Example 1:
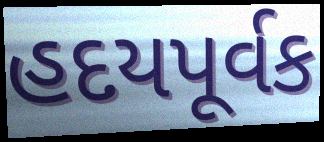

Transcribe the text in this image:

હદયપૂર્વક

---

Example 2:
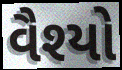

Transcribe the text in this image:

વૈશ્યો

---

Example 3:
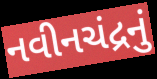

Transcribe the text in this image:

નવીનચંદ્રનું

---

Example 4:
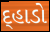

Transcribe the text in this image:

દ્હાડો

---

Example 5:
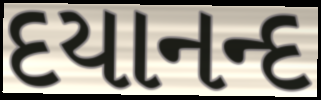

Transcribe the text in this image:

દયાનન્દ